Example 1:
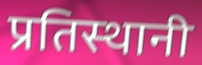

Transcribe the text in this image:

प्रतिस्थानी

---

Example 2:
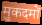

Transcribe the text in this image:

मुकदमों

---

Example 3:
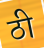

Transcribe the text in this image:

ठी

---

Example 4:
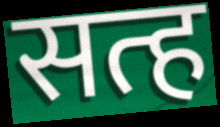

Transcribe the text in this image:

सत्ह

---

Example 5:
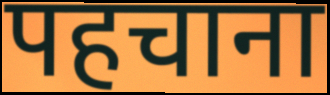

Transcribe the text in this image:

पहचाना